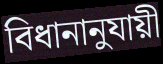
বিধানানুযায়ী